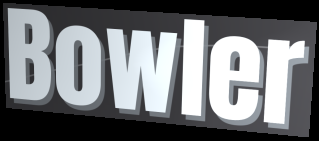
Bowler